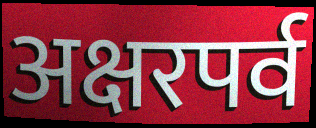
अक्षरपर्व